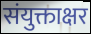
संयुक्ताक्षर